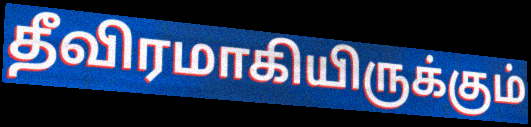
தீவிரமாகியிருக்கும்